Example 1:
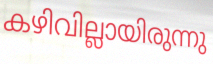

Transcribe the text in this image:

കഴിവില്ലായിരുന്നു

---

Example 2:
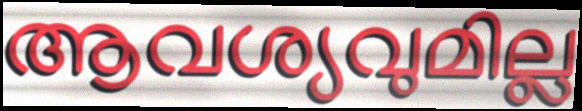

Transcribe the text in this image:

ആവശ്യവുമില്ല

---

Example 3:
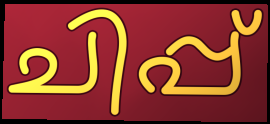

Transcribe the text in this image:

ചിപ്പ്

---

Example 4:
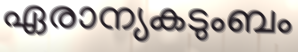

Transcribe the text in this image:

ഏരാന്യകടുംബം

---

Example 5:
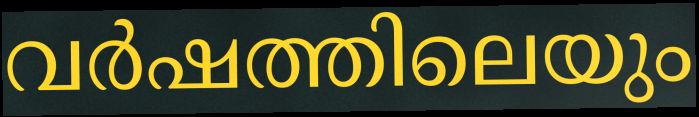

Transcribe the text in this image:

വർഷത്തിലെയും